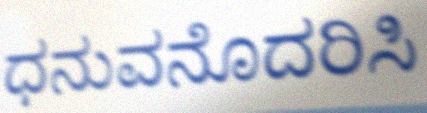
ಧನುವನೊದರಿಸಿ